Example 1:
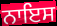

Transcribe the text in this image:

ਨਾਇਸ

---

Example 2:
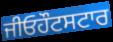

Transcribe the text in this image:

ਜੀਓਹੌਟਸਟਾਰ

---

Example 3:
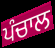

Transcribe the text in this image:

ਪੰਚਾਲ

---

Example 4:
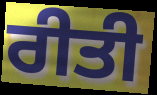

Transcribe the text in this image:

ਰੀਤੀ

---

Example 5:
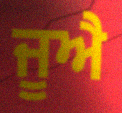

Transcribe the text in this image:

ਜੂਐ